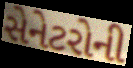
સેનેટરોની